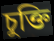
চুক্তি